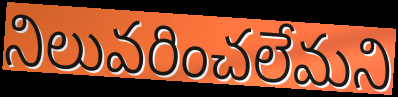
నిలువరించలేమని